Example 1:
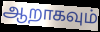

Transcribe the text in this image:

ஆறாகவும்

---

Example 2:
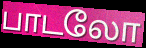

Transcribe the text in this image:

பாடலோ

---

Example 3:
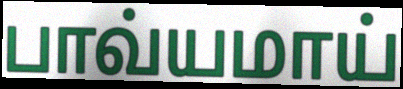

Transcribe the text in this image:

பாவ்யமாய்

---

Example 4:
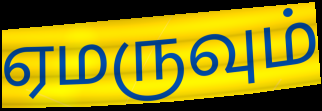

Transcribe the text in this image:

ஏமருவும்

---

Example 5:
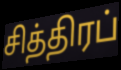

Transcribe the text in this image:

சித்திரப்